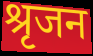
श्रृजन